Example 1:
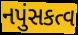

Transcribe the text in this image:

નપુંસકત્વ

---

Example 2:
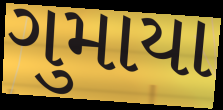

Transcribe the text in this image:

ગુમાયા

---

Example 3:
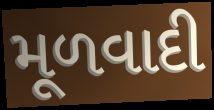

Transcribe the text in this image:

મૂળવાદી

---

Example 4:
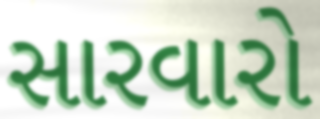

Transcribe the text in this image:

સારવારો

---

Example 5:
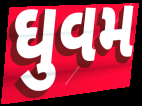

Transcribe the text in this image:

ઘુવમ